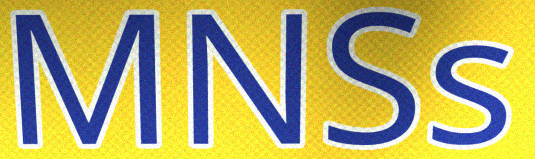
MNSs